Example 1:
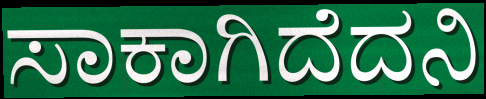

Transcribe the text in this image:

ಸಾಕಾಗಿದೆದನಿ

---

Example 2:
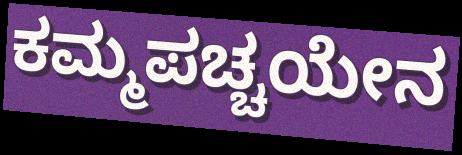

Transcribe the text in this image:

ಕಮ್ಮಪಚ್ಚಯೇನ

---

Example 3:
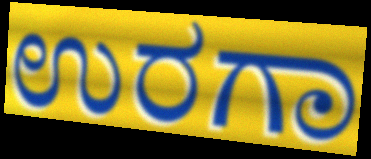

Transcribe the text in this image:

ಉರಗಾ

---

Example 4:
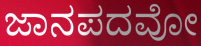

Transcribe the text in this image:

ಜಾನಪದವೋ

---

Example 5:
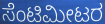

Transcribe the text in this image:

ಸೆಂಟಿಮೀಟರ